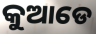
କୁଆଡେ